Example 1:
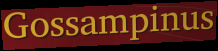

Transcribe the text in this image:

Gossampinus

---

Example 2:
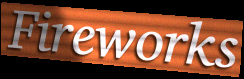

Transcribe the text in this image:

Fireworks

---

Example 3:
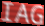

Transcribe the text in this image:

IAG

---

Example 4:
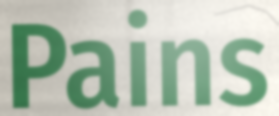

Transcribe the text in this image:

Pains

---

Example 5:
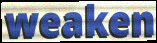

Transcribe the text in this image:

weaken